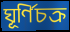
ঘূর্ণিচক্র